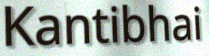
Kantibhai